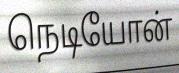
நெடியோன்